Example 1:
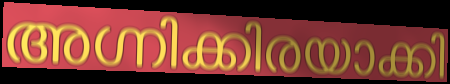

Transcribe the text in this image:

അഗ്നിക്കിരയാക്കി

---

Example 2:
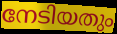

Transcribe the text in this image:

നേടിയതും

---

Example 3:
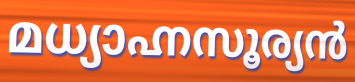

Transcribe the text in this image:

മധ്യാഹ്നസൂര്യൻ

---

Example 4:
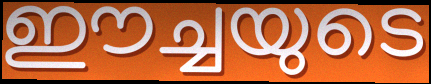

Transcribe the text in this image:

ഈച്ചയുടെ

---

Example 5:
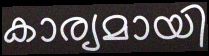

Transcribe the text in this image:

കാര്യമായി